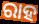
ରାହ